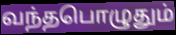
வந்தபொழுதும்